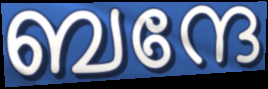
ബന്ദേ